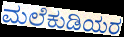
ಮಲೆಕುಡಿಯರ